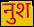
नुश